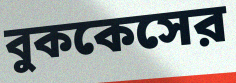
বুককেসের